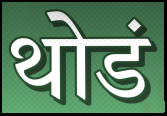
थोडं